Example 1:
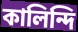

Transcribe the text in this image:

কালিন্দি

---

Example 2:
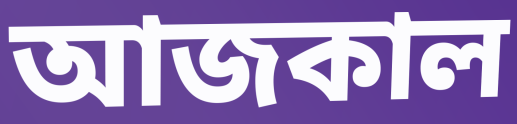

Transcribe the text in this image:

আজকাল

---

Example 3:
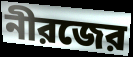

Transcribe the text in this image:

নীরজের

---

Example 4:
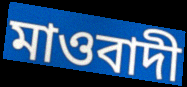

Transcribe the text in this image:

মাওবাদী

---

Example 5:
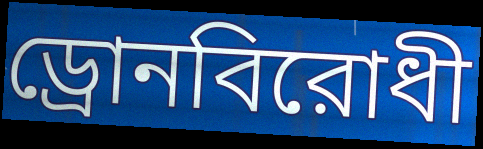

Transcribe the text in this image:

ড্রোনবিরোধী